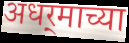
अधर्माच्या